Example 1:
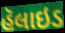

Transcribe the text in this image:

હૅલાઇડ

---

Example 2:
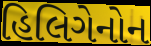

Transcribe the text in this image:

હિલિગેનોન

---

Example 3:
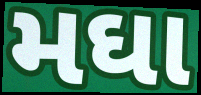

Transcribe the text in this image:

મઘા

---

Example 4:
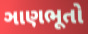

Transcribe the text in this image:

ઞાણભૂતો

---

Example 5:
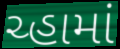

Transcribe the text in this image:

ચ્હામાં